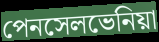
পেনসেলভেনিয়া